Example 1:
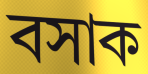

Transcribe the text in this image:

বসাক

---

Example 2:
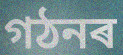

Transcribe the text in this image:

গঠনৰ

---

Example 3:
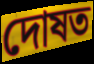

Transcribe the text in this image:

দোষত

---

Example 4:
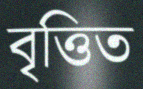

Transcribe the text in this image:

বৃত্তিত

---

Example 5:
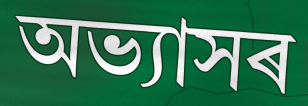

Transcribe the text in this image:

অভ্যাসৰ